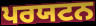
ਪਰਯਟਨ